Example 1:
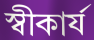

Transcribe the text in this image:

স্বীকার্য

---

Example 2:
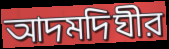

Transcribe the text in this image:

আদমদিঘীর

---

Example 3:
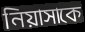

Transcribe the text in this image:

নিয়াসাকে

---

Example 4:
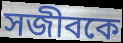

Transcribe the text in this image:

সজীবকে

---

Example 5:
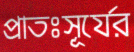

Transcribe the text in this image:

প্রাতঃসূর্যের